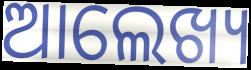
ଆଲେଖ୍ୟ